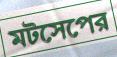
মটসেপের